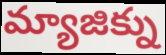
మ్యాజిక్ను